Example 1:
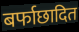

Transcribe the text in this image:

बर्फाछादित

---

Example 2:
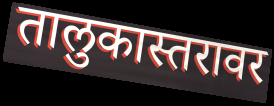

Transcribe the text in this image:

तालुकास्तरावर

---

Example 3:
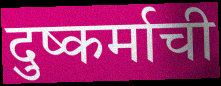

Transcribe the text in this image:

दुष्कर्माची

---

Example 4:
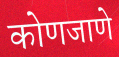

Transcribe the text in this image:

कोणजाणे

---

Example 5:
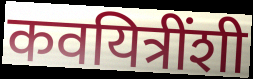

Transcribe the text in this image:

कवयित्रींशी